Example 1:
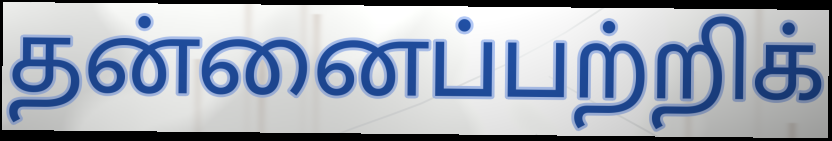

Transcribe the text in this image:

தன்னைப்பற்றிக்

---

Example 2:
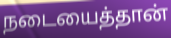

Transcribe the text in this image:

நடையைத்தான்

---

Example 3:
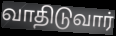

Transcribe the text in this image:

வாதிடுவார்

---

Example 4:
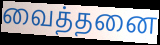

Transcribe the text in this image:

வைத்தனை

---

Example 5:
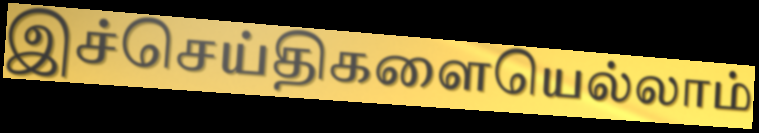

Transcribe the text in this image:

இச்செய்திகளையெல்லாம்